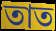
তাত